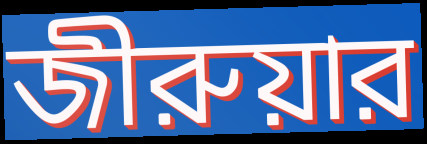
জীরুয়ার